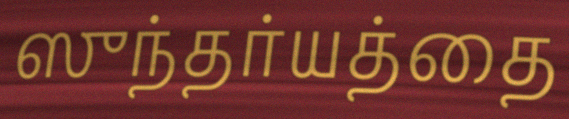
ஸுந்தர்யத்தை